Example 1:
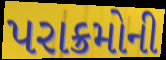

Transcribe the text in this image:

પરાક્રમોની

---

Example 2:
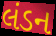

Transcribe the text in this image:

લંડન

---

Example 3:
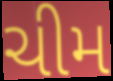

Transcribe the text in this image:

ચીમ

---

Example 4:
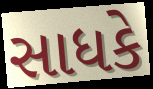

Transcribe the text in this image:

સાધકે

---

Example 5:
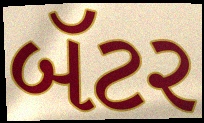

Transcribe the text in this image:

બૅટર